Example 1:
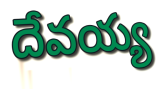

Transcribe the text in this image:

దేవయ్య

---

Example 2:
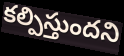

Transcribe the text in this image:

కల్పిస్తుందని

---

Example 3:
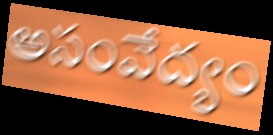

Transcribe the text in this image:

అసంవేద్యం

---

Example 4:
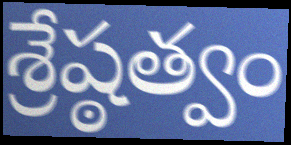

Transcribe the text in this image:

శ్రేష్ఠత్వం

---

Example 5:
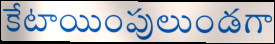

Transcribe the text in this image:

కేటాయింపులుండగా